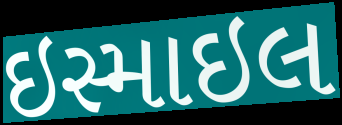
ઇસ્માઇલ